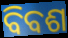
ବିବଶ